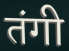
तंगी